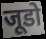
जूडो